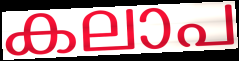
കലാപ